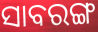
ସାବରଙ୍ଗ